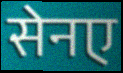
सेनए